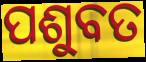
ପଶୁବତ